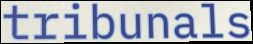
tribunals